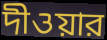
দীওয়ার